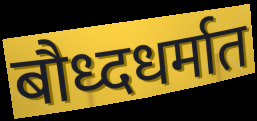
बौध्दधर्मात